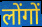
लोंगों